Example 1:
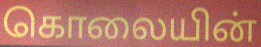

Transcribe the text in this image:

கொலையின்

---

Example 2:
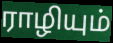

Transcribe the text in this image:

ராழியும்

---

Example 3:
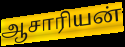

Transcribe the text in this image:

ஆசாரியன்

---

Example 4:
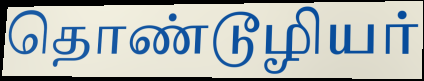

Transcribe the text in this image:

தொண்டூழியர்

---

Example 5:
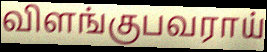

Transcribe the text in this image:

விளங்குபவராய்